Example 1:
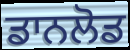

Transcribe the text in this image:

ਡਾਨਲੋਡ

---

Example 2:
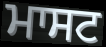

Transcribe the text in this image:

ਮਾਸਟ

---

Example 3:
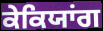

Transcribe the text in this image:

ਕੇਕਿਯਾਂਗ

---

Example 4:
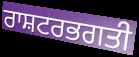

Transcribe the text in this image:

ਰਾਸ਼ਟਰਭਗਤੀ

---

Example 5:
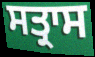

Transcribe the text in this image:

ਸਤ੍ਰਾਸ